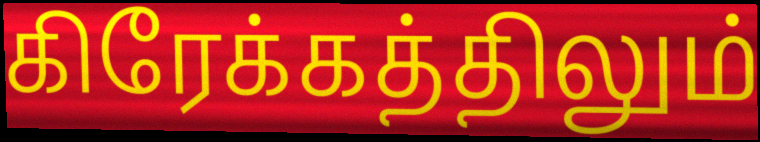
கிரேக்கத்திலும்